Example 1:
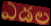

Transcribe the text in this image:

ఎడల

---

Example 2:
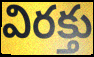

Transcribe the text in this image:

విరక్తు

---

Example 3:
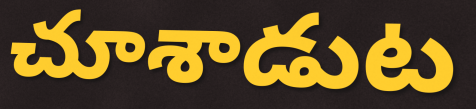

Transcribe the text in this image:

చూశాడుట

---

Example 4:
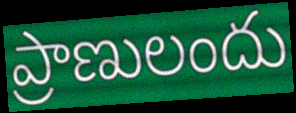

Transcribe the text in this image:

ప్రాణులందు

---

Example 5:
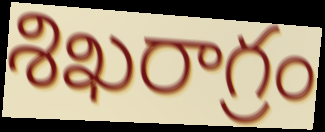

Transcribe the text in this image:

శిఖరాగ్రం